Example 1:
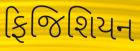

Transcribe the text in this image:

ફિજિશિયન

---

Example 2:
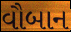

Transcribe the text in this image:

વૌબાન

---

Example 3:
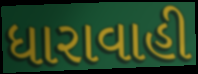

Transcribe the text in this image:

ધારાવાહી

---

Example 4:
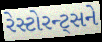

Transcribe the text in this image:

રેસ્ટોરન્ટ્સને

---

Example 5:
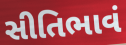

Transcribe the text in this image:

સીતિભાવં